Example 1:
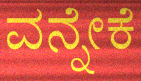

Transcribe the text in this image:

ವನ್ನೇಕೆ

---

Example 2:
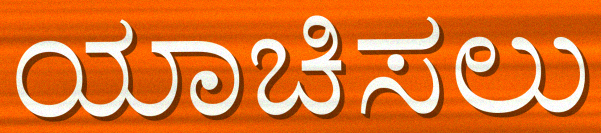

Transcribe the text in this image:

ಯಾಚಿಸಲು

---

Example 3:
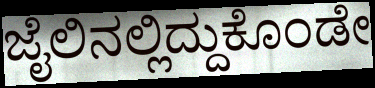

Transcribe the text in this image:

ಜೈಲಿನಲ್ಲಿದ್ದುಕೊಂಡೇ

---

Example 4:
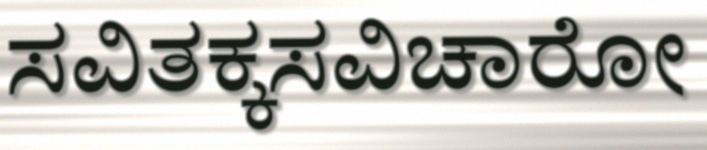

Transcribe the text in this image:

ಸವಿತಕ್ಕಸವಿಚಾರೋ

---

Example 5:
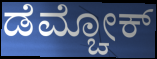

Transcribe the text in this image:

ಡೆಮ್ಚೋಕ್